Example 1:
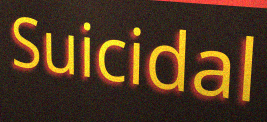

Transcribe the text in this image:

Suicidal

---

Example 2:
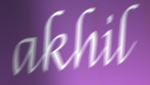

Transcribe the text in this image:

akhil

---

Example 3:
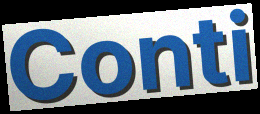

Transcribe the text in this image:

Conti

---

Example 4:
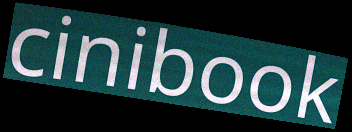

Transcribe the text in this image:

cinibook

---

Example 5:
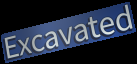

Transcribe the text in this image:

Excavated